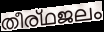
തീര്ഥജലം